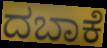
ದಬಾಕೆ